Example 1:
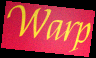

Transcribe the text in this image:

Warp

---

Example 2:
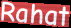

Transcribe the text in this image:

Rahat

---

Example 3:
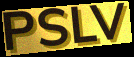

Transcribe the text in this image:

PSLV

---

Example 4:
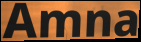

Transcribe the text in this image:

Amna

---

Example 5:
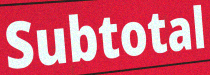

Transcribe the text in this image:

Subtotal